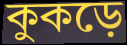
কুকড়ে